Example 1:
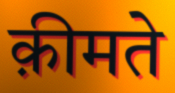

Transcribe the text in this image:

क़ीमते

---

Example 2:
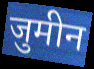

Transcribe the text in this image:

जुमीन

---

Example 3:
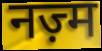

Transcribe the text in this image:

नज़्म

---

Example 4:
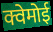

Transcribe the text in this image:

क्वेमोई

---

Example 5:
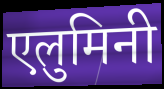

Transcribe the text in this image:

एलुमिनी